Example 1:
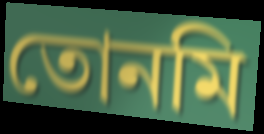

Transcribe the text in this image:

তোনমি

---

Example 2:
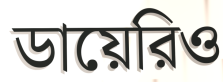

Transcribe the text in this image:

ডায়েরিও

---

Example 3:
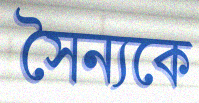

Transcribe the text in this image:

সৈন্যকে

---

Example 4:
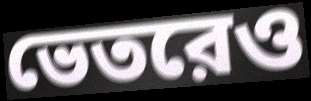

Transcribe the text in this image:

ভেতরেও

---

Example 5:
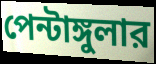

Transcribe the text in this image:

পেন্টাঙ্গুলার